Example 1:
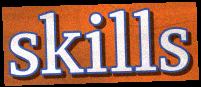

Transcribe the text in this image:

skills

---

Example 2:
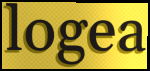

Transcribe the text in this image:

logea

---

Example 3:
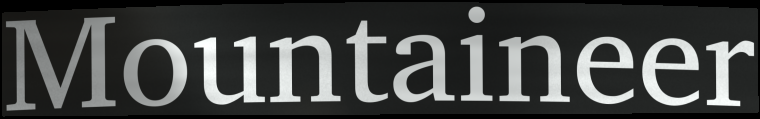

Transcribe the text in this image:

Mountaineer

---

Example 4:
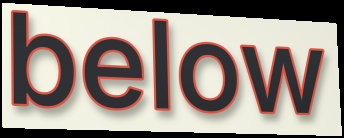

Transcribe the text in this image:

below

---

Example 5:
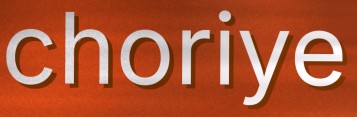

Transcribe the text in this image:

choriye